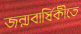
জন্মবাৰ্ষিকীতে